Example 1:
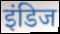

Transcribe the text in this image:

इंडिज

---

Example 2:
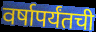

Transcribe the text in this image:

वर्षापर्यंतची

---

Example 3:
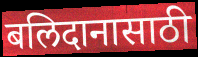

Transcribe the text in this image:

बलिदानासाठी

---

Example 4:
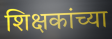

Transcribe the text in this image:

शिक्षकांच्‍या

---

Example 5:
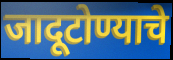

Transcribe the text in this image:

जादूटोण्याचे